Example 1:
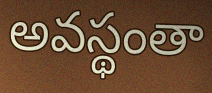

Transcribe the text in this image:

అవస్థంతా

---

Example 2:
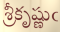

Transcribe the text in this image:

శ్రీకృష్ణుఁ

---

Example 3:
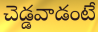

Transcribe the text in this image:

చెడ్డవాడంటే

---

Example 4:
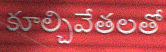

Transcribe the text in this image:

కూల్చివేతలతో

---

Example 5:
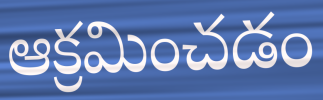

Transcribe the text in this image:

ఆక్రమించడం